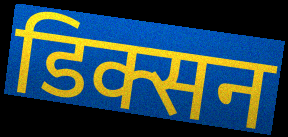
डिक्सन